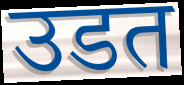
उडत